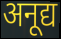
अनूद्य